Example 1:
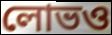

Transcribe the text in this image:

লোভও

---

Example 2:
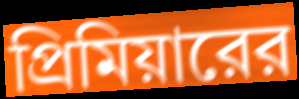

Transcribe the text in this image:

প্রিমিয়ারের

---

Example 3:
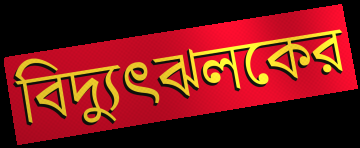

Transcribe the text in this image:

বিদ্যুৎঝলকের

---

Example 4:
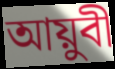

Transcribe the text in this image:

আয়ুবী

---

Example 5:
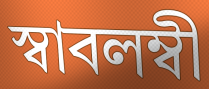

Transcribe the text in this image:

স্বাবলম্বী